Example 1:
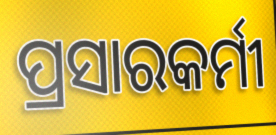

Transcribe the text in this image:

ପ୍ରସାରକର୍ମୀ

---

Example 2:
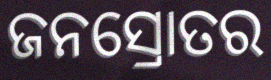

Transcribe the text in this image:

ଜନସ୍ରୋତର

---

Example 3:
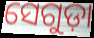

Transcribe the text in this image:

ସେଗୁଡ଼ା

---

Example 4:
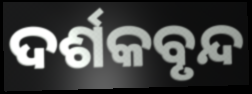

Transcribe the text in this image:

ଦର୍ଶକବୃନ୍ଦ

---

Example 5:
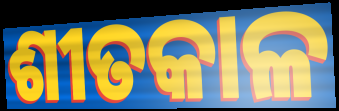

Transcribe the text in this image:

ଶୀତକାଳ